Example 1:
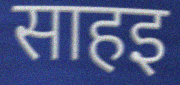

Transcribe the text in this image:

साहइ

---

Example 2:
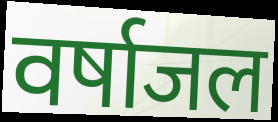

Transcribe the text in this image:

वर्षाजल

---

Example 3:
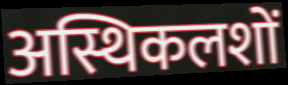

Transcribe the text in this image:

अस्थिकलशों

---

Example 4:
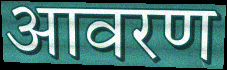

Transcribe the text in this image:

आवरण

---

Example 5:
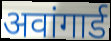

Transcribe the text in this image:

अवांगार्ड